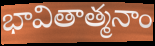
భావితాత్మనాం